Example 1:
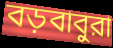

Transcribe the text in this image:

বড়বাবুরা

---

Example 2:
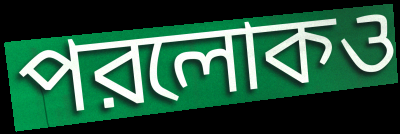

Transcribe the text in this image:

পরলোকও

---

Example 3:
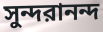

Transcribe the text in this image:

সুন্দরানন্দ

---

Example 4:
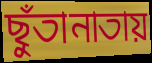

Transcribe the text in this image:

ছুঁতানাতায়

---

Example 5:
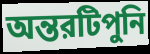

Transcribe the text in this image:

অন্তরটিপুনি